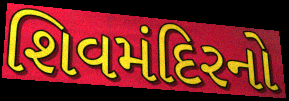
શિવમંદિરનો